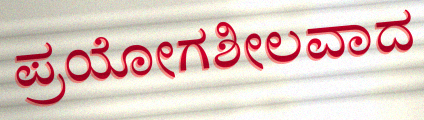
ಪ್ರಯೋಗಶೀಲವಾದ